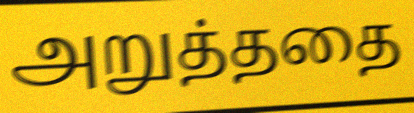
அறுத்ததை